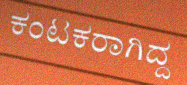
ಕಂಟಕರಾಗಿದ್ದ